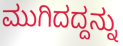
ಮುಗಿದದ್ದನ್ನು